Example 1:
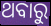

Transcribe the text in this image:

ଥବାରୁ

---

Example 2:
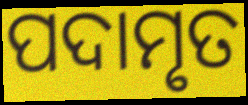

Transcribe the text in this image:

ପଦାମୃତ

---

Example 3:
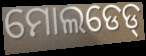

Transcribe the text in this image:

ମୋଲଡେଡ୍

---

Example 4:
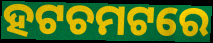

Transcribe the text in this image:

ହଟଚମଟରେ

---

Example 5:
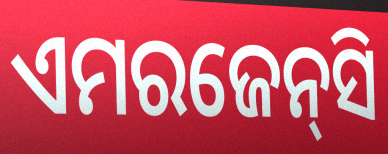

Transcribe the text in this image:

ଏମରଜେନ୍‌ସି